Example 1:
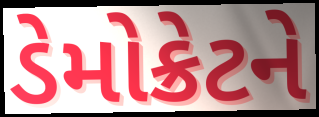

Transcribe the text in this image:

ડેમોક્રેટને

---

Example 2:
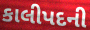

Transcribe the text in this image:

કાલીપદની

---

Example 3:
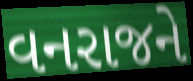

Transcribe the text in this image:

વનરાજને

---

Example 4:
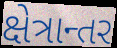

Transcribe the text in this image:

ક્ષેત્રાન્તર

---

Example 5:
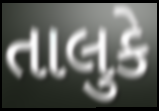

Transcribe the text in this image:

તાલુકે